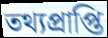
তথ্যপ্রাপ্তি